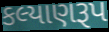
કલ્યાણરૂપ